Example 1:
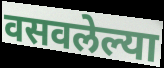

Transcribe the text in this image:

वसवलेल्या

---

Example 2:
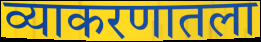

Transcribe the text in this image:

व्याकरणातला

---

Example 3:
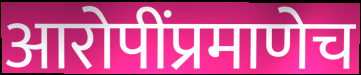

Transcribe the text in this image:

आरोपींप्रमाणेच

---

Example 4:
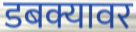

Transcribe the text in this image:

डबक्यावर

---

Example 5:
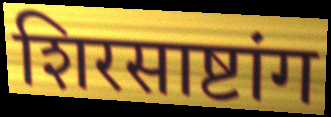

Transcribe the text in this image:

शिरसाष्टांग